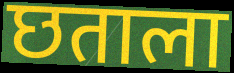
छताला